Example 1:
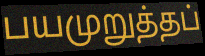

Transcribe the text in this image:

பயமுறுத்தப்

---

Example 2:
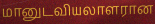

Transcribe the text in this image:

மானுடவியலாளரான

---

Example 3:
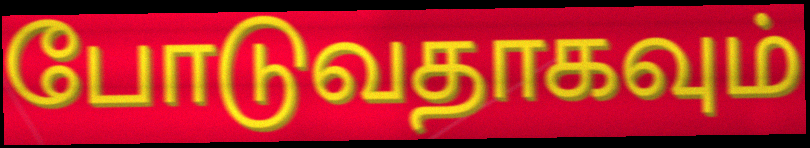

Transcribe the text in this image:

போடுவதாகவும்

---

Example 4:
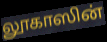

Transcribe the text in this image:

லூகாஸின்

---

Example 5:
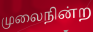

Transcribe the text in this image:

முலைநின்ற